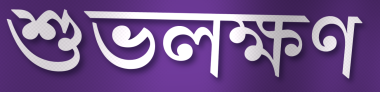
শুভলক্ষণ